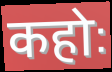
कहोः